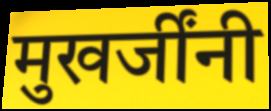
मुखर्जींनी